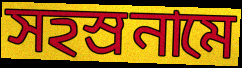
সহস্ৰনামে